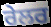
ਰੇਲਰ